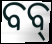
ବବ୍